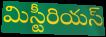
మిస్టీరియస్